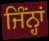
ਜਿੰਂਨ੍ਹਾਂ